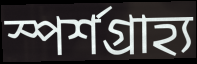
স্পর্শগ্রাহ্য